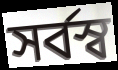
সৰ্বস্ব